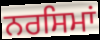
ਨਰਸਿਮਾਂ